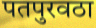
पतपुरवठा